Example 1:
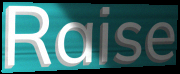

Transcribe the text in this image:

Raise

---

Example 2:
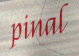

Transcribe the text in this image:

pinal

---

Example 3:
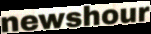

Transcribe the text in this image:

newshour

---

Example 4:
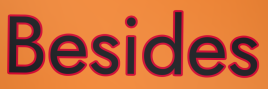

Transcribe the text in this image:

Besides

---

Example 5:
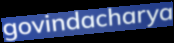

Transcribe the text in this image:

govindacharya